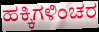
ಹಕ್ಕಿಗಳಿಂಚರ